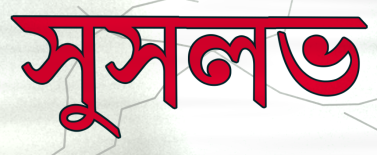
সুসলভ